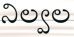
నిల్వల